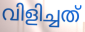
വിളിച്ചത്